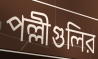
পল্লীগুলির